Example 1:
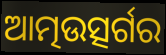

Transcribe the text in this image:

ଆତ୍ମଉତ୍ସର୍ଗର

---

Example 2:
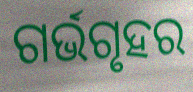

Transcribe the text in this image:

ଗର୍ଭଗୃହର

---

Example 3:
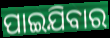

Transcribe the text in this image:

ପାଇଯିବାର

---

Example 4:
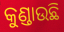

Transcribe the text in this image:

କୁଣ୍ଡାଉଛି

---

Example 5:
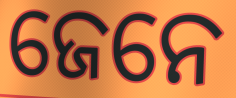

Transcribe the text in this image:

ଜେନେ